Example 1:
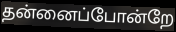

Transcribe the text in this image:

தன்னைப்போன்றே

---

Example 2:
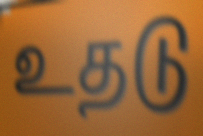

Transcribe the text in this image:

உதடு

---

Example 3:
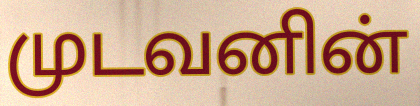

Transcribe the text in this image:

முடவனின்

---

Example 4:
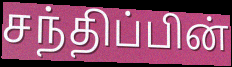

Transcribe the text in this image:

சந்திப்பின்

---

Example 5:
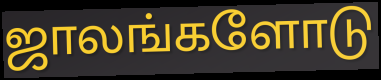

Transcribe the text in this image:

ஜாலங்களோடு